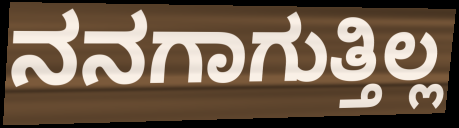
ನನಗಾಗುತ್ತಿಲ್ಲ